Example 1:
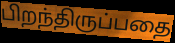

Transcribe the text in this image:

பிறந்திருப்பதை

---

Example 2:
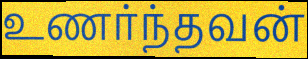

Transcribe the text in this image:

உணர்ந்தவன்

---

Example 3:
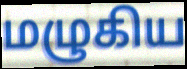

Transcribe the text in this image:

மழுகிய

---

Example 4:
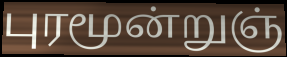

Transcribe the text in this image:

புரமூன்றுஞ்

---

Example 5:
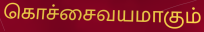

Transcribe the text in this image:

கொச்சைவயமாகும்